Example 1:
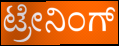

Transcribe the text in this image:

ಟ್ರೇನಿಂಗ್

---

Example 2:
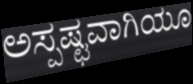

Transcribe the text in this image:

ಅಸ್ಪಷ್ಟವಾಗಿಯೂ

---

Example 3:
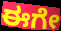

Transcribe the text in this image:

ಈಗೇ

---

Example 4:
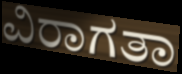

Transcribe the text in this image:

ವಿರಾಗತಾ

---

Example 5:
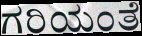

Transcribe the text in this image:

ಗರಿಯಂತೆ